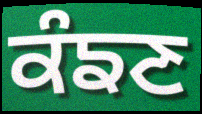
ਕੰਙਣ